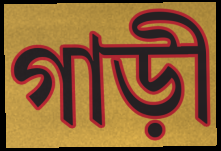
গাড়ী